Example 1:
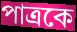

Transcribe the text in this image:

পাত্রকে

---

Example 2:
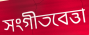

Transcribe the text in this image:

সংগীতবেত্তা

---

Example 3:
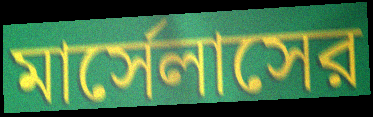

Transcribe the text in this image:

মার্সেলাসের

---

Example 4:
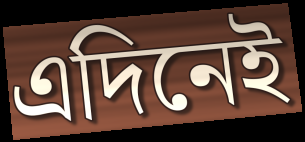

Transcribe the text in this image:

এদিনেই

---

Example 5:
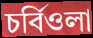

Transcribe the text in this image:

চর্বিওলা